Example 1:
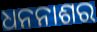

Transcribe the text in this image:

ଧନନାଶର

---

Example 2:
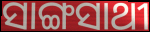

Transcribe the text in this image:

ସାଙ୍ଗସାଥୀ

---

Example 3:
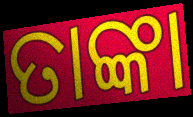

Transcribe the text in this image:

ତାଙ୍କା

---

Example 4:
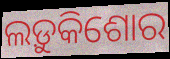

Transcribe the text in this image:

ଲଡ଼ୁକିଶୋର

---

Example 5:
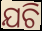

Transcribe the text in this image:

ଯଚି